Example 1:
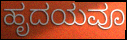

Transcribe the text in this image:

ಹೃದಯವೂ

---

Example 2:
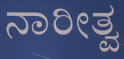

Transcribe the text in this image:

ನಾರೀತ್ವ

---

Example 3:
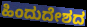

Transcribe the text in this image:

ಹಿಂದುದೇಶದ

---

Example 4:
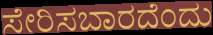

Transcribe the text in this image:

ಸೇರಿಸಬಾರದೆಂದು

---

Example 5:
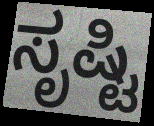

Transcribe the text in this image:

ಸೃಷ್ಟಿ